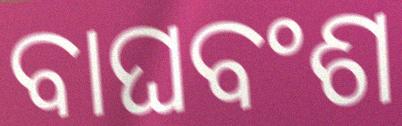
ବାଘବଂଶ